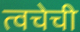
त्वचेची